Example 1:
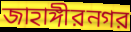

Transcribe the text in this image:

জাহাঙ্গীরনগর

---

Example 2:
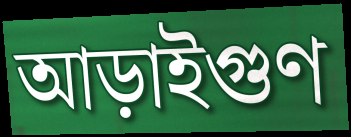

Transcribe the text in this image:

আড়াইগুণ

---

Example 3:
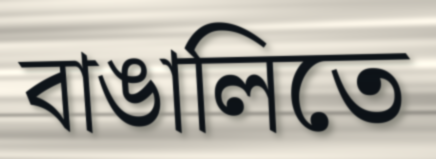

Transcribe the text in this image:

বাঙালিতে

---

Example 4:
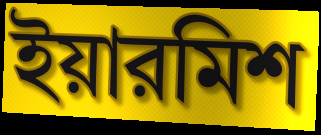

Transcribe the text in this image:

ইয়ারমিশ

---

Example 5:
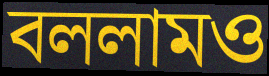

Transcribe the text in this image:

বললামও